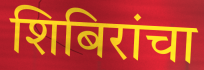
शिबिरांचा